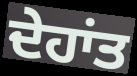
ਦੇਹਾਂਤ